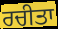
ਰਚੀਤਾ